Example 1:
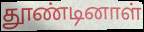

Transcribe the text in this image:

தூண்டினாள்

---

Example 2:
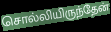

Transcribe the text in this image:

சொல்லியிருந்தேன்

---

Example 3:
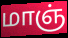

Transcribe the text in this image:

மாஞ்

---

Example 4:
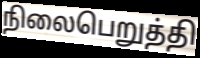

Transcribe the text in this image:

நிலைபெறுத்தி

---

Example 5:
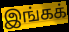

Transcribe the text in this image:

இங்கக்